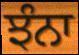
ਝੰਨਾ